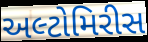
અલ્ટોમિરીસ